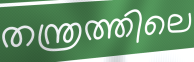
തന്ത്രത്തിലെ